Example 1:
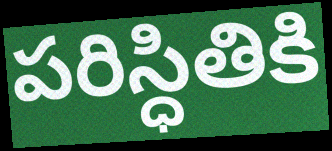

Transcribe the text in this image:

పరిస్ధితికి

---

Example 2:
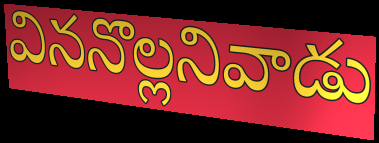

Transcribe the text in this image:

విననొల్లనివాడు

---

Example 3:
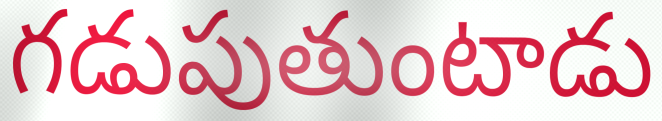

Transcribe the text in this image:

గడుపుతుంటాడు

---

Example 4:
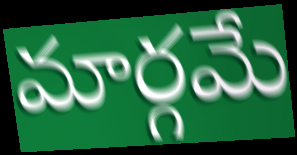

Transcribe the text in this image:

మార్గమే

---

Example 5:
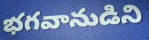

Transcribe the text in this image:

భగవానుడిని